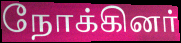
நோக்கினர்